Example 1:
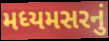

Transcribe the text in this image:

મધ્યમસરનું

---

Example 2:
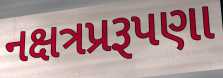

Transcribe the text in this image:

નક્ષત્રપ્રરૂપણા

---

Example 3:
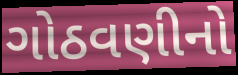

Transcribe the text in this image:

ગોઠવણીનો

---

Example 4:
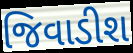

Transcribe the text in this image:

જિવાડીશ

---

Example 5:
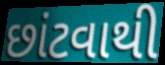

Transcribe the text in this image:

છાંટવાથી